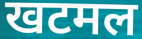
खटमल